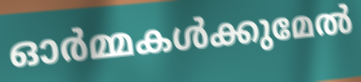
ഓർമ്മകൾക്കുമേൽ